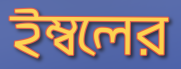
ইম্বলের